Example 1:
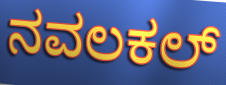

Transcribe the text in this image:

ನವಲಕಲ್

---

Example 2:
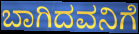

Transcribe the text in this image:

ಬಾಗಿದವನಿಗೆ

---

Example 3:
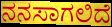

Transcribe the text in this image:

ನನಸಾಗಲಿದೆ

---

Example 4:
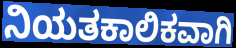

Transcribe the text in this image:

ನಿಯತಕಾಲಿಕವಾಗಿ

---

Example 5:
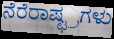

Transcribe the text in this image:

ನೆರೆರಾಷ್ಟ್ರಗಳು